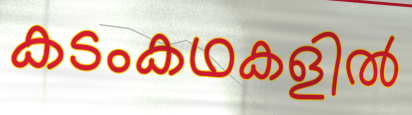
കടംകഥകളിൽ